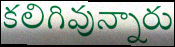
కలిగివున్నారు